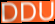
DDU